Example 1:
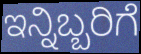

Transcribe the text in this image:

ಇನ್ನಿಬ್ಬರಿಗೆ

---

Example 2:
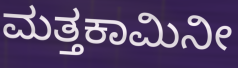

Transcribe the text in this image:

ಮತ್ತಕಾಮಿನೀ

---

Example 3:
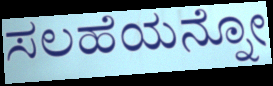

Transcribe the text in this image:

ಸಲಹೆಯನ್ನೋ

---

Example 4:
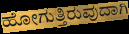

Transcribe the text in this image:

ಹೋಗುತ್ತಿರುವುದಾಗಿ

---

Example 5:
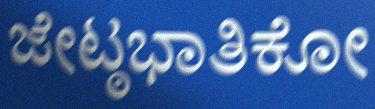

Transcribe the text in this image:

ಜೇಟ್ಠಭಾತಿಕೋ